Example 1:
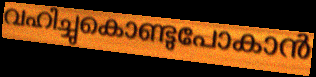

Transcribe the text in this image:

വഹിച്ചുകൊണ്ടുപോകാൻ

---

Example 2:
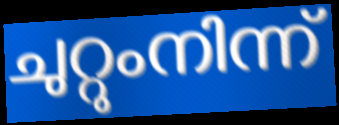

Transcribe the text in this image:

ചുറ്റുംനിന്ന്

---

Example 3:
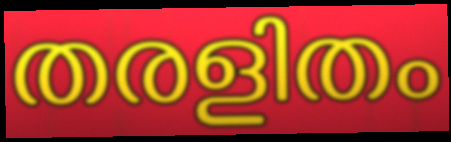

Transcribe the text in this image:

തരളിതം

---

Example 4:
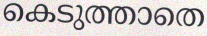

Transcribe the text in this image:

കെടുത്താതെ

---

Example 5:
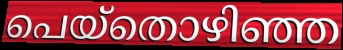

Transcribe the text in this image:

പെയ്തൊഴിഞ്ഞ